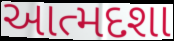
આત્મદશા